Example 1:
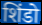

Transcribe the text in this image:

शिंडो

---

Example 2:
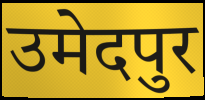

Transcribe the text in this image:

उमेदपुर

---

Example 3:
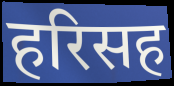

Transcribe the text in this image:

हरिसह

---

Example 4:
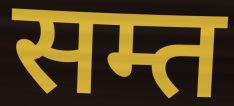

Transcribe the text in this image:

सम्त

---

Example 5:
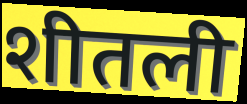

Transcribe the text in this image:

शीतली